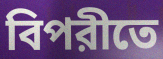
বিপরীতে